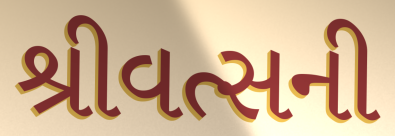
શ્રીવત્સની